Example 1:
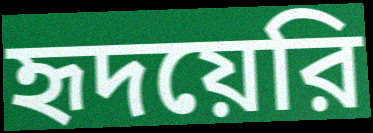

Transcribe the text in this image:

হৃদয়েরি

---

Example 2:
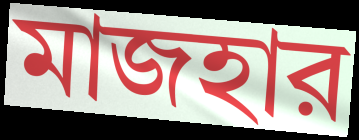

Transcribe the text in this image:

মাজহার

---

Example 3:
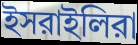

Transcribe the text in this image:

ইসরাইলিরা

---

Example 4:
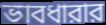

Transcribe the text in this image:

ভাবধারার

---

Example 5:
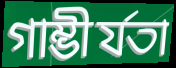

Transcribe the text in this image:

গাম্ভীর্যতা